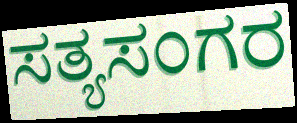
ಸತ್ಯಸಂಗರ